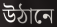
উঠানে